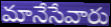
మానేసేవారు